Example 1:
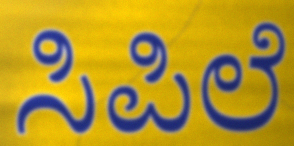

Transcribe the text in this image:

ಸಿಪಿಲೆ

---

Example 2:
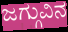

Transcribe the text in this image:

ಜಗ್ಗುವಿನ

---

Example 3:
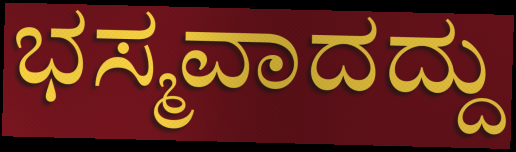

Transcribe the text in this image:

ಭಸ್ಮವಾದದ್ದು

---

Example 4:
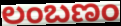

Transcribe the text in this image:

ಲಂಬಣಂ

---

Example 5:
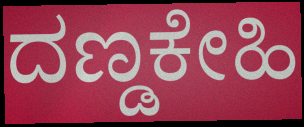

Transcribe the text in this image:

ದಣ್ಡಕೇಹಿ